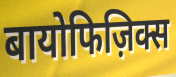
बायोफिज़िक्स